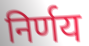
निर्णय